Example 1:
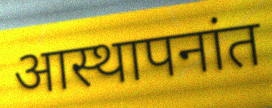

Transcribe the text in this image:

आस्थापनांत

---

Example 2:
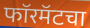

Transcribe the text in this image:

फॉरमॅटचा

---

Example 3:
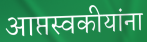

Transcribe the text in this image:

आप्तस्वकीयांना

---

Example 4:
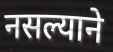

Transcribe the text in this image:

नसल्याने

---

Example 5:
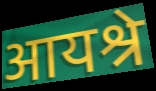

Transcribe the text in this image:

आयश्रे